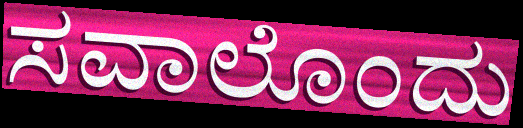
ಸವಾಲೊಂದು